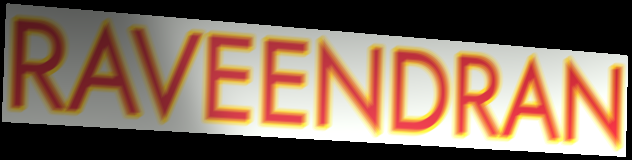
RAVEENDRAN